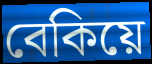
বেকিয়ে